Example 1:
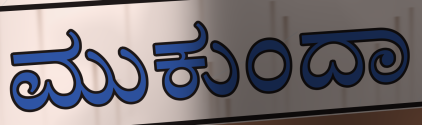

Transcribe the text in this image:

ಮುಕುಂದಾ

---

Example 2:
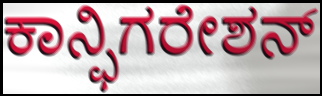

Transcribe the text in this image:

ಕಾನ್ಫಿಗರೇಶನ್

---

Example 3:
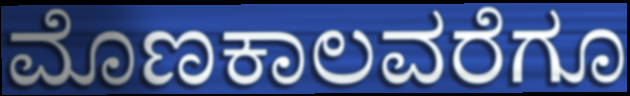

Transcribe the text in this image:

ಮೊಣಕಾಲವರೆಗೂ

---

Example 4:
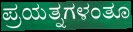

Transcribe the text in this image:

ಪ್ರಯತ್ನಗಳಂತೂ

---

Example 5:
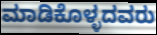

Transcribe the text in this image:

ಮಾಡಿಕೊಳ್ಳದವರು